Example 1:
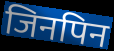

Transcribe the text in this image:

जिनपिन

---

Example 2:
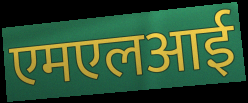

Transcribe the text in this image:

एमएलआई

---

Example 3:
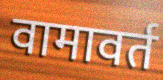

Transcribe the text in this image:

वामावर्त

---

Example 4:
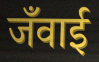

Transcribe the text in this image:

जँवाई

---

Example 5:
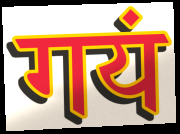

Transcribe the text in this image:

गयं